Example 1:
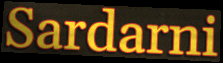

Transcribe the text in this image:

Sardarni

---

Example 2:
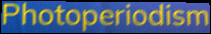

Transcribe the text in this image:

Photoperiodism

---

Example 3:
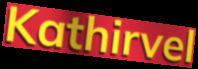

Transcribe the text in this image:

Kathirvel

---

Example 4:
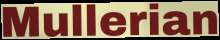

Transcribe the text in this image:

Mullerian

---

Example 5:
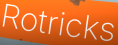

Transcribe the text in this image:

Rotricks